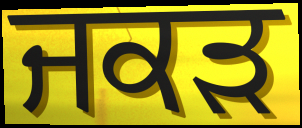
ਜਕਡ਼